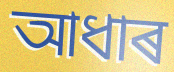
আধাৰ